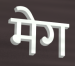
मेग